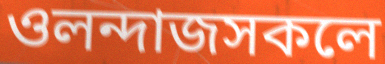
ওলন্দাজসকলে